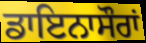
ਡਾਇਨਾਸੌਰਾਂ